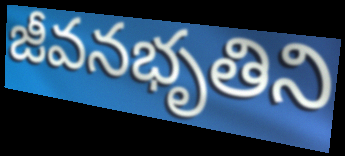
జీవనభృతిని